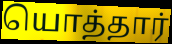
யொத்தார்